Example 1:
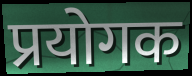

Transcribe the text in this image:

प्रयोगक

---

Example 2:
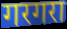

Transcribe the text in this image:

गरगरा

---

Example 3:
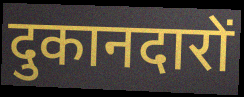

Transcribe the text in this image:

दुकानदारों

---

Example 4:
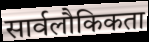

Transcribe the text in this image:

सार्वलौकिकता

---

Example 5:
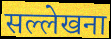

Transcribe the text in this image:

सल्लेखना